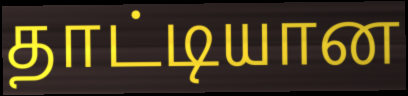
தாட்டியான